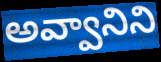
అవ్వానిని